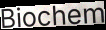
Biochem